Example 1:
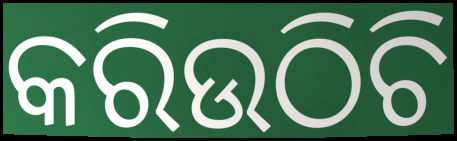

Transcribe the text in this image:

କରିଉଠିଚି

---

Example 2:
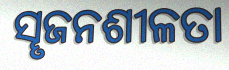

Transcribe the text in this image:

ସୄଜନଶୀଳତା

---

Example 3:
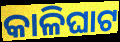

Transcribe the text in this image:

କାଳିଘାଟ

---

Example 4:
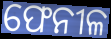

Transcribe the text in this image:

ଫେନୀଳ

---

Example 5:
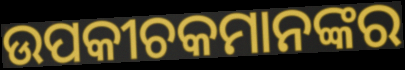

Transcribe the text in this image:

ଉପକୀଚକମାନଙ୍କର